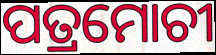
ପତ୍ରମୋଚୀ